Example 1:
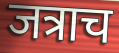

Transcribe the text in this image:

जत्राच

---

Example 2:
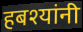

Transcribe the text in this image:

हबश्यांनी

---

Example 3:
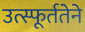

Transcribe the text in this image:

उत्स्फूर्ततेने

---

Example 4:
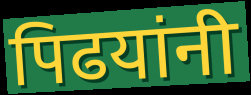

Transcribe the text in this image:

पिढयांनी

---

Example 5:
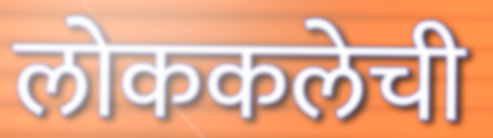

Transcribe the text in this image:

लोककलेची